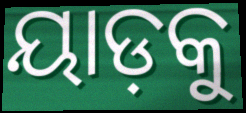
ୟାଡ଼କୁ